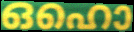
ഒഹൊ